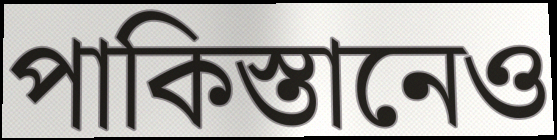
পাকিস্তানেও